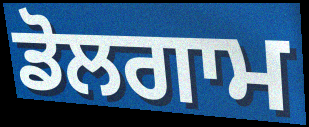
ਡੋਲਗਾਮ